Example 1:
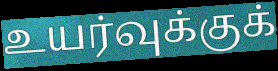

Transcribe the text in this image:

உயர்வுக்குக்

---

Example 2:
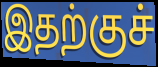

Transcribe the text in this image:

இதற்குச்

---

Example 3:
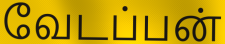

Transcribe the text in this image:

வேடப்பன்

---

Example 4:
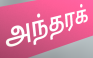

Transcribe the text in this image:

அந்தரக்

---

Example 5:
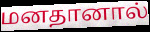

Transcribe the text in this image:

மனதானால்